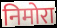
निमोरा